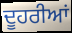
ਦੂਹਰੀਆਂ